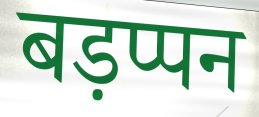
बड़प्पन